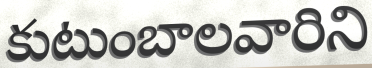
కుటుంబాలవారిని